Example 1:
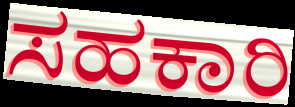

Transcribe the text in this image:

ಸಹಕಾರಿ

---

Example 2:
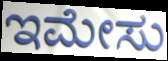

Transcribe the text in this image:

ಇಮೇಸು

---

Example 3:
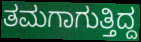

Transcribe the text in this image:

ತಮಗಾಗುತ್ತಿದ್ದ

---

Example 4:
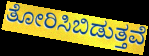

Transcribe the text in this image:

ತೋರಿಸಿಬಿಡುತ್ತವೆ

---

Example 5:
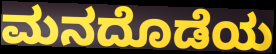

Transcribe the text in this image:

ಮನದೊಡೆಯ